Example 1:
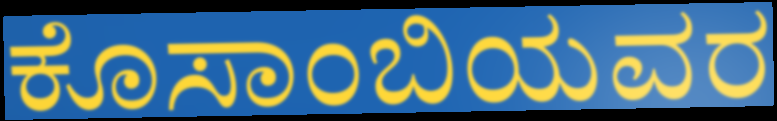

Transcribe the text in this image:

ಕೊಸಾಂಬಿಯವರ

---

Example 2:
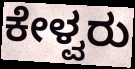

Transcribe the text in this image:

ಕೇಳ್ವರು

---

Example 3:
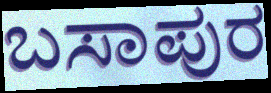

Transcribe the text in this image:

ಬಸಾಪುರ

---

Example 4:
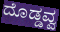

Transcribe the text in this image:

ದೊಡ್ಡವ್ವ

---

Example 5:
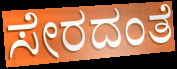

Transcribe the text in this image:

ಸೇರದಂತೆ